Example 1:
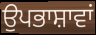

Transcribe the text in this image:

ਉਪਭਾਸ਼ਾਵਾਂ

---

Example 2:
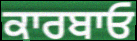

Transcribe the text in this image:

ਕਾਰਬਾਓ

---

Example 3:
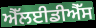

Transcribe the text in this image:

ਐੱਲਈਡੀਐੱਸ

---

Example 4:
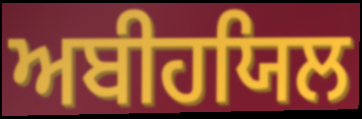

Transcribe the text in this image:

ਅਬੀਹਯਿਲ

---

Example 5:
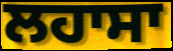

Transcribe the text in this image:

ਲਹਾਸਾ